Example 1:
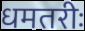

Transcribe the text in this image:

धमतरीः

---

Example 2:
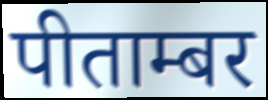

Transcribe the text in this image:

पीताम्बर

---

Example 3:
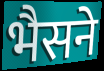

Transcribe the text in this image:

भैसने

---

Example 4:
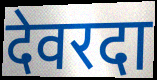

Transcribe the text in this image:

देवरदा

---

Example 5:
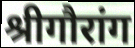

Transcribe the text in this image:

श्रीगौरांग